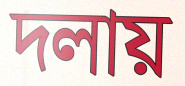
দলায়